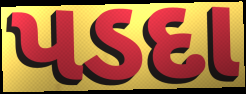
પડદા